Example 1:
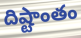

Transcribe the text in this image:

దిష్టాంతం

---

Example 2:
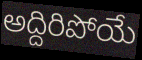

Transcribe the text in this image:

అద్దిరిపోయే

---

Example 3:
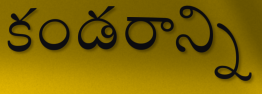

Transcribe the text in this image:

కండరాన్ని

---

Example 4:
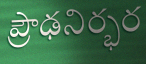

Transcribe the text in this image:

ప్రౌఢనిర్భర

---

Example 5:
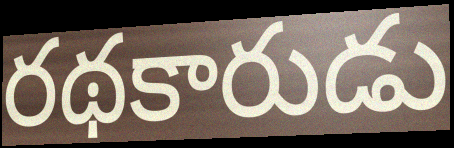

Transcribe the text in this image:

రథకారుడు